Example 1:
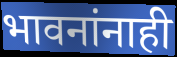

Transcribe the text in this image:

भावनांनाही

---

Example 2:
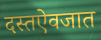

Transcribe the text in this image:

दस्तऐवजात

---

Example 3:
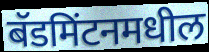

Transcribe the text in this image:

बॅडमिंटनमधील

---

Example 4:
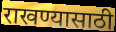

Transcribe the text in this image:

राखण्यासाठी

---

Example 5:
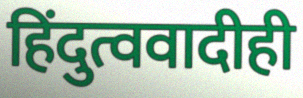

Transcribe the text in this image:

हिंदुत्ववादीही